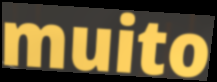
muito